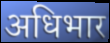
अधिभार